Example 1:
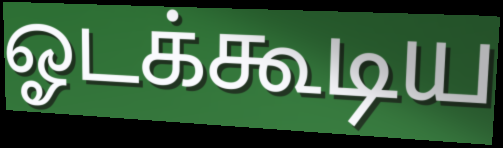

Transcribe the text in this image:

ஓடக்கூடிய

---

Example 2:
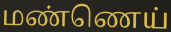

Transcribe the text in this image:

மண்ணெய்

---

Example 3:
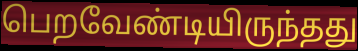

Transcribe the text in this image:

பெறவேண்டியிருந்தது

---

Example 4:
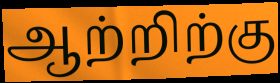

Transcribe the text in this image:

ஆற்றிற்கு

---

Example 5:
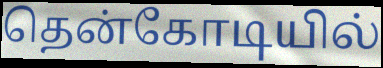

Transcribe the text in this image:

தென்கோடியில்